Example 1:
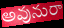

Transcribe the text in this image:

అవునురా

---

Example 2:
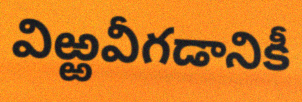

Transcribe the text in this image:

విఱ్ఱవీగడానికీ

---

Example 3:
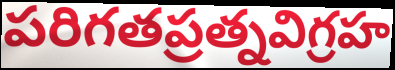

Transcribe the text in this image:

పరిగతప్రత్నవిగ్రహ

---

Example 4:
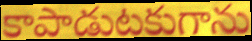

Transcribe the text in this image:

కాపాడుటకుగాను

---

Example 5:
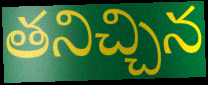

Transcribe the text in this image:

తనిచ్చిన